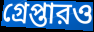
গ্রেপ্তারও